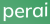
perai